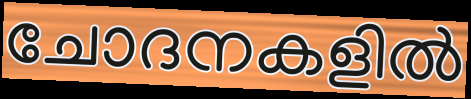
ചോദനകളിൽ